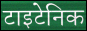
टाइटेनिक